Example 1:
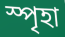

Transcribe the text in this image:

স্পৃহা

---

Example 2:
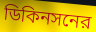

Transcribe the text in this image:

ডিকিনসনের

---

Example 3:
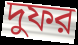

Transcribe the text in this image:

দুফর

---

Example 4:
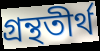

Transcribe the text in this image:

গ্রন্থতীর্থ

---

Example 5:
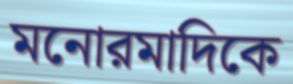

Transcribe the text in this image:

মনোরমাদিকে